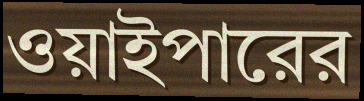
ওয়াইপারের